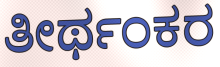
ತೀರ್ಥಂಕರ